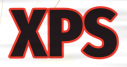
XPS